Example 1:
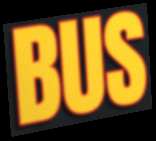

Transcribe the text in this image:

BUS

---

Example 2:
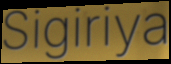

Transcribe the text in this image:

Sigiriya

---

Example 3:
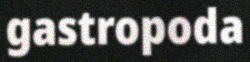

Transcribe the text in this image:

gastropoda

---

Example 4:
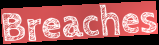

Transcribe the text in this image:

Breaches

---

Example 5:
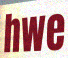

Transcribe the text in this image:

hwe